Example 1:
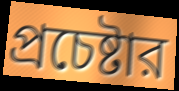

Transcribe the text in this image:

প্রচেষ্টার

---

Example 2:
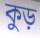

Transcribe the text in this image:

কুড়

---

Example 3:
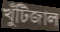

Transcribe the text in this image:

খুঁটিজাল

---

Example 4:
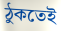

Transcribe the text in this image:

ঠুকতেই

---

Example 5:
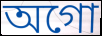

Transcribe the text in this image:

অগো